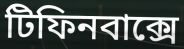
টিফিনবাক্সে